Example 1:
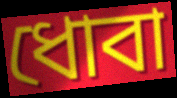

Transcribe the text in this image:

ধোবা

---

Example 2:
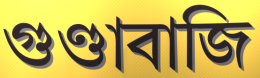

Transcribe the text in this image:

গুণ্ডাবাজি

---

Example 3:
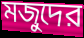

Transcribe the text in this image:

মজুদের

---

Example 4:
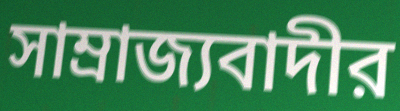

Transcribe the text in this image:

সাম্রাজ্যবাদীর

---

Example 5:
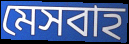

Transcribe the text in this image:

মেসবাহ